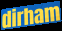
dirham